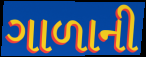
ગાળાની